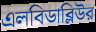
এলবিডাব্লিউর